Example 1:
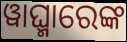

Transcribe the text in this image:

ୱାଘ୍ମାରେଙ୍କ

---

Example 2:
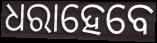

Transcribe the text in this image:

ଧରାହେବେ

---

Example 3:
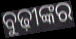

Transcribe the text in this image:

ବୁଢ଼ୀଙ୍କର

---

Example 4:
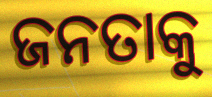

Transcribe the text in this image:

ଜନତାକୁ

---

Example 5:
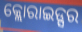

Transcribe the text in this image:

କ୍ଲୋରାଇଡ୍ସର